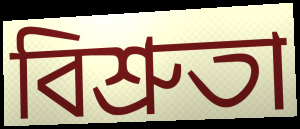
বিশ্রুতা